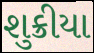
શુક્રીયા